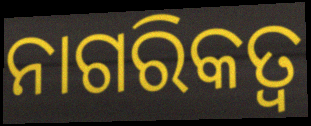
ନାଗରିକତ୍ୱ